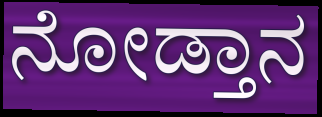
ನೋಡ್ತಾನ